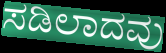
ಸಡಿಲಾದವು